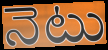
నెటు